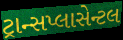
ટ્રાન્સપ્લાસેન્ટલ